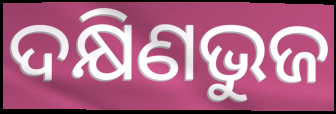
ଦକ୍ଷିଣଭୁଜ